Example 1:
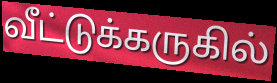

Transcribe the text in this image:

வீட்டுக்கருகில்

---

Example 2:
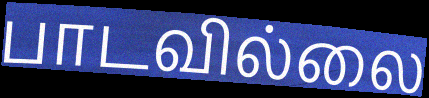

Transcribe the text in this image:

பாடவில்லை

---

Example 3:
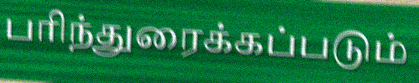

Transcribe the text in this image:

பரிந்துரைக்கப்படும்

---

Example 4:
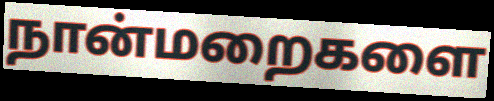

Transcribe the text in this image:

நான்மறைகளை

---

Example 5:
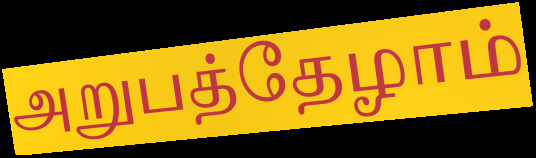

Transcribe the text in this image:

அறுபத்தேழாம்